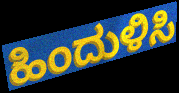
ಹಿಂದುಳಿಸಿ